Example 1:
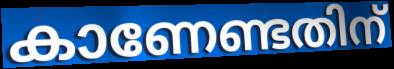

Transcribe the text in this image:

കാണേണ്ടതിന്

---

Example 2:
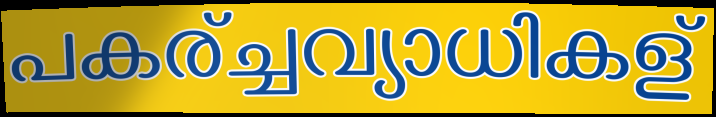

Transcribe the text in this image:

പകര്ച്ചവ്യാധികള്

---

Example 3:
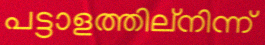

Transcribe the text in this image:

പട്ടാളത്തില്നിന്ന്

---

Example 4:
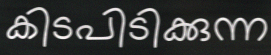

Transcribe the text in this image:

കിടപിടിക്കുന്ന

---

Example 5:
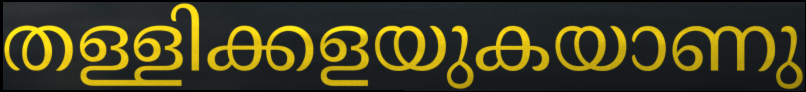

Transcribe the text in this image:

തള്ളിക്കളയുകയാണു